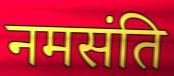
नमसंति